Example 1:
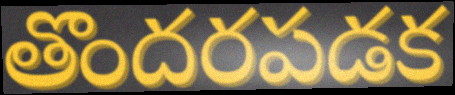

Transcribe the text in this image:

తొందరపడక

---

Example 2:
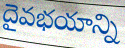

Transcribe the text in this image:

దైవభయాన్ని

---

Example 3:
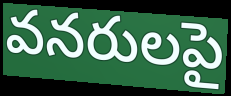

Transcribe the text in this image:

వనరులపై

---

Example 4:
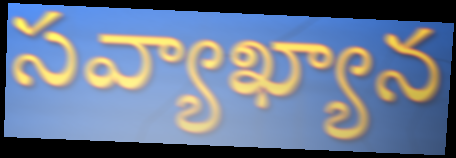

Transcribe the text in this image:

సవ్యాఖ్యాన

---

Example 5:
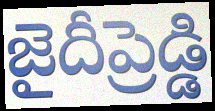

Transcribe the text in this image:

జైదీప్రెడ్డి